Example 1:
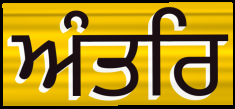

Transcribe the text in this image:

ਅੰਤਰਿ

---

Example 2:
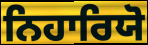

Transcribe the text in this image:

ਨਿਹਾਰਿਯੋ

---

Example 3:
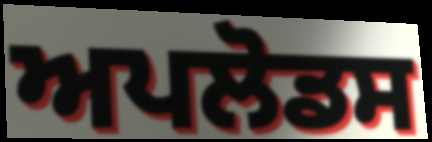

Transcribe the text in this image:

ਅਪਲੋਡਸ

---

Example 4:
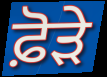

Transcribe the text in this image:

ਫ਼ੋੜੇ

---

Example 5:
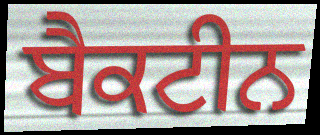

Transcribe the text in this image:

ਬੈਕਟੀਨ